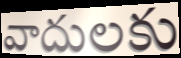
వాదులకు